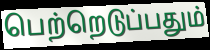
பெற்றெடுப்பதும்